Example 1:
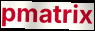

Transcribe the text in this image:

pmatrix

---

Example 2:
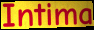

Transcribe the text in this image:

Intima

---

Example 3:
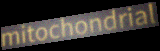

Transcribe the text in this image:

mitochondrial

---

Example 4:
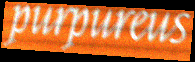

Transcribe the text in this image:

purpureus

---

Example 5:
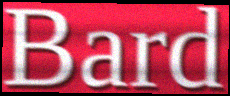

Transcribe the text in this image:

Bard